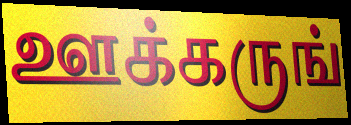
ஊக்கருங்